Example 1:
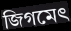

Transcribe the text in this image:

জিগমেৎ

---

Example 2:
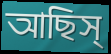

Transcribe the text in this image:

আছিস্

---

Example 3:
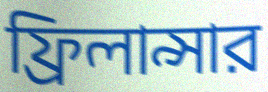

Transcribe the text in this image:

ফ্রিলান্সার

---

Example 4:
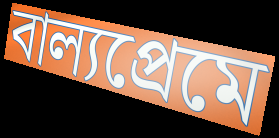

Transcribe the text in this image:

বাল্যপ্রেমে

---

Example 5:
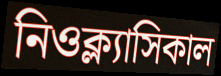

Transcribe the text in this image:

নিওক্ল্যাসিকাল